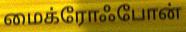
மைக்ரோஃபோன்